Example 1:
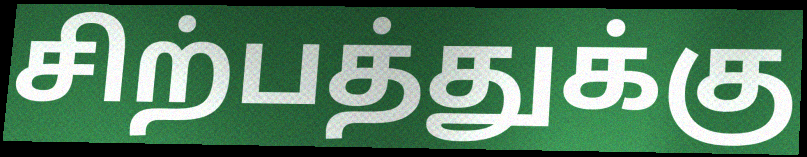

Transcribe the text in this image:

சிற்பத்துக்கு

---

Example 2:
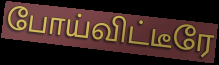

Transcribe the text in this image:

போய்விட்டீரே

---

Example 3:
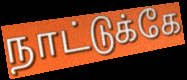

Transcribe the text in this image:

நாட்டுக்கே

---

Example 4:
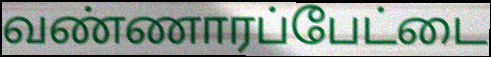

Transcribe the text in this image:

வண்ணாரப்பேட்டை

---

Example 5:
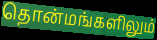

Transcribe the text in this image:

தொன்மங்களிலும்